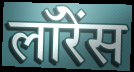
लॉरेंस